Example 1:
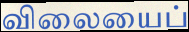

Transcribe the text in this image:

விலையைப்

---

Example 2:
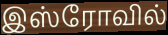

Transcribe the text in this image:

இஸ்ரோவில்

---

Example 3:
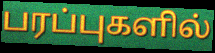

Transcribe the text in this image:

பரப்புகளில்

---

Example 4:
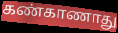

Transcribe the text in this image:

கண்காணாது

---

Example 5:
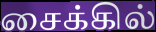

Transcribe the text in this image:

சைக்கில்